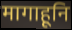
मागाहूनि